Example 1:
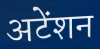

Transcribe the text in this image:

अटेंशन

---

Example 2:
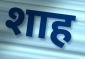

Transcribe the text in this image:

शाह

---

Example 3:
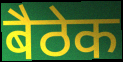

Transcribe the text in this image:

बैठेक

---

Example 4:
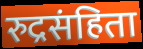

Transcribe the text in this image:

रुद्रसंहिता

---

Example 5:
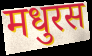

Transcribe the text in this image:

मधुरस